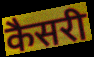
कैसरी